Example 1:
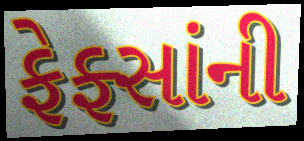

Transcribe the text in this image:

ફેફ્સાંની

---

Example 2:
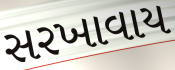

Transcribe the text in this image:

સરખાવાય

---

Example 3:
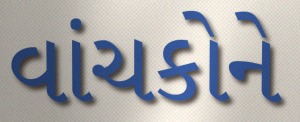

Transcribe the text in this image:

વાંચકોને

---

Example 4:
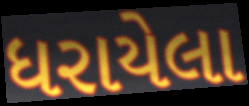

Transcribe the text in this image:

ધરાયેલા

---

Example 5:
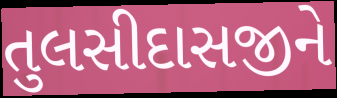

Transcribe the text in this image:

તુલસીદાસજીને